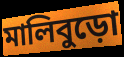
মালিবুড়ো